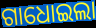
ଗାଧୋଇଲା